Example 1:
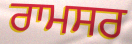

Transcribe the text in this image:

ਰਾਮਸਰ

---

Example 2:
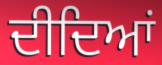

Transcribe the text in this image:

ਦੀਦਿਆਂ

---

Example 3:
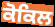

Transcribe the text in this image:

ਕੋਕਿਲ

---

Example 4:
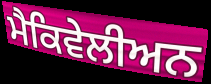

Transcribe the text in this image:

ਮੈਕਿਵੇਲੀਅਨ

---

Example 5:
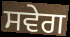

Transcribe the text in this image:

ਸਵੇਗ